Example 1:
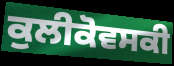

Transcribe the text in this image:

ਕੁਲੀਕੋਵਸਕੀ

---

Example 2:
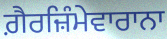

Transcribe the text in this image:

ਗ਼ੈਰਜ਼ਿੰਮੇਵਾਰਾਨਾ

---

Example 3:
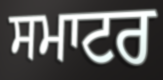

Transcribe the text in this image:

ਸਮਾਟਰ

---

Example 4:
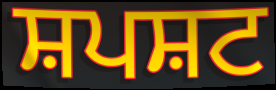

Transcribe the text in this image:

ਸ਼ਪਸ਼ਟ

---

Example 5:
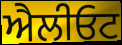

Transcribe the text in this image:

ਐਲੀਓਟ